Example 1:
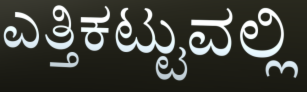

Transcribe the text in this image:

ಎತ್ತಿಕಟ್ಟುವಲ್ಲಿ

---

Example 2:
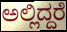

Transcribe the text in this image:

ಅಲ್ಲಿದ್ದರೆ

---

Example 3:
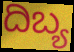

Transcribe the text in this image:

ದಿಬ್ಯ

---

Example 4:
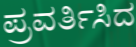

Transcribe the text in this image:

ಪ್ರವರ್ತಿಸಿದ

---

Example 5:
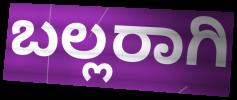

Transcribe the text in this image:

ಬಲ್ಲರಾಗಿ